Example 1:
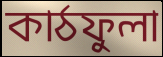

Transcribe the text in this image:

কাঠফুলা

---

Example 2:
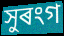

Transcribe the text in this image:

সুৰংগ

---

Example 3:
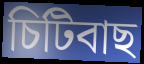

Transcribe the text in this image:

চিটিবাছ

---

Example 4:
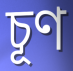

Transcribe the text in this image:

চূণ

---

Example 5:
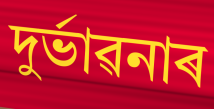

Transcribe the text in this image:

দুৰ্ভাৱনাৰ